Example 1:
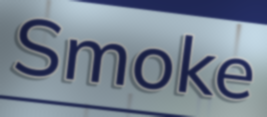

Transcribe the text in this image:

Smoke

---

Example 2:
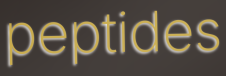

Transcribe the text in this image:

peptides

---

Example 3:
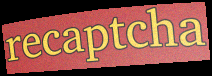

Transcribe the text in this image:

recaptcha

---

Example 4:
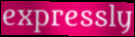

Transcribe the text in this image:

expressly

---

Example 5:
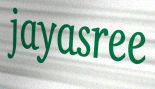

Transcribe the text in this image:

jayasree